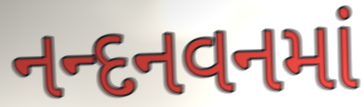
નન્દનવનમાં